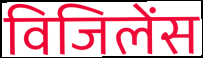
विजिलेंस